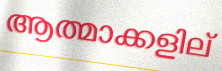
ആത്മാക്കളില്